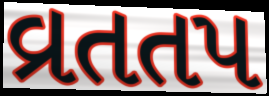
વ્રતતપ